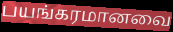
பயங்கரமானவை